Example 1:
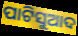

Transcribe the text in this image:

ପାଟିସୁଆଦ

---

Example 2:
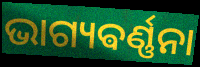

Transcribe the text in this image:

ଭାଗ୍ୟଵର୍ଣ୍ଣନା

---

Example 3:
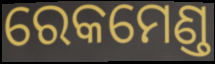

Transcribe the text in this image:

ରେକମେଣ୍ଡ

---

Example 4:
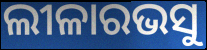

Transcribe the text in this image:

ଲୀଳାରଭସୁ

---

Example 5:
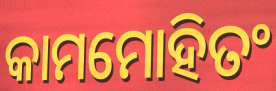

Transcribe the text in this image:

କାମମୋହିତଂ